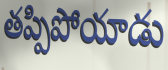
తప్పిపోయాడు